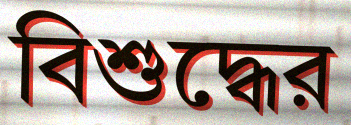
বিশুদ্ধের